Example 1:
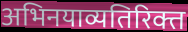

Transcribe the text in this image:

अभिनयाव्यतिरिक्त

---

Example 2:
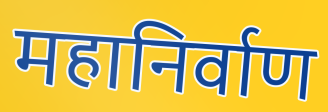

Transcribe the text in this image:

महानिर्वाण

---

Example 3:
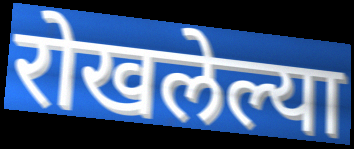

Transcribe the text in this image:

रोखलेल्या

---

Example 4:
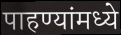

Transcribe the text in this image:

पाहण्यांमध्ये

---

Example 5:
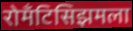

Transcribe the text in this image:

रोमँटिसिझमला